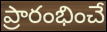
ప్రారంభించే